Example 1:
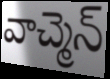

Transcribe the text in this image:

వాచ్మెన్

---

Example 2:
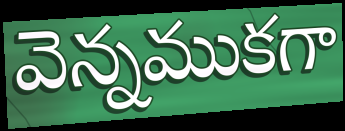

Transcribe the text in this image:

వెన్నముకగా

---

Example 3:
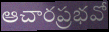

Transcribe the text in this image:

ఆచారప్రభవో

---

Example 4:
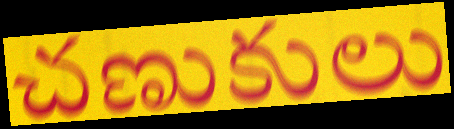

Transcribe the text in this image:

చణుకులు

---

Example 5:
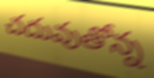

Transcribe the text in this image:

చదువుతోన్న